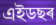
এইডছৰ